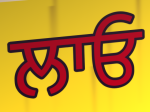
ਲਾਓ